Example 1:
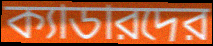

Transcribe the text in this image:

ক্যাডারদের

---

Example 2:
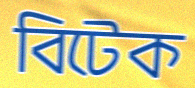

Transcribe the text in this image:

বিটেক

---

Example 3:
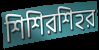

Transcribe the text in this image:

শিশিরশিহর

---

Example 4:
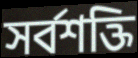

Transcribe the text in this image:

সর্বশক্তি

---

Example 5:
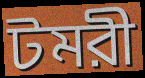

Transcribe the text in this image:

টমরী